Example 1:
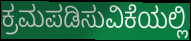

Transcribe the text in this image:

ಕ್ರಮಪಡಿಸುವಿಕೆಯಲ್ಲಿ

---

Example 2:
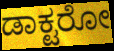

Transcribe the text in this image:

ಡಾಕ್ಟರೋ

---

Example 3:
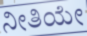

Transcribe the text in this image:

ನೀತಿಯೇ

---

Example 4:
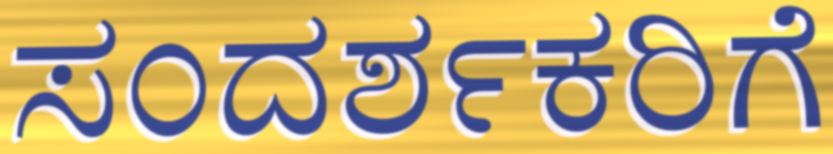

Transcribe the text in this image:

ಸಂದರ್ಶಕರಿಗೆ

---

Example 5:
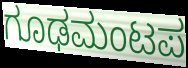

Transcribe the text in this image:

ಗೂಢಮಂಟಪ